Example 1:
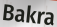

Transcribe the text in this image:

Bakra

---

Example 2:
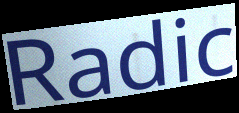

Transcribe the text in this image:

Radic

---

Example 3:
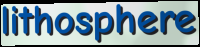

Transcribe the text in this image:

lithosphere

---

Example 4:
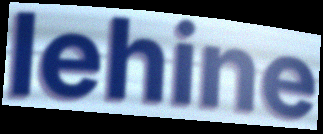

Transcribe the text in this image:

lehine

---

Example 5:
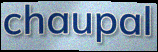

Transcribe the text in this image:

chaupal